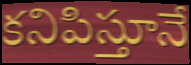
కనిపిస్తూనే